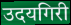
उदयगिरी